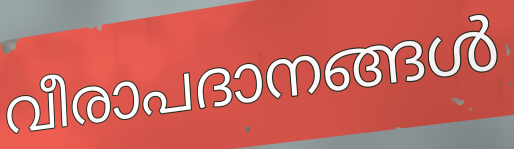
വീരാപദാനങ്ങൾ